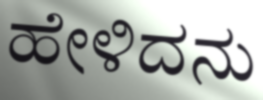
ಹೇಳಿದನು